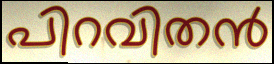
പിറവിതൻ